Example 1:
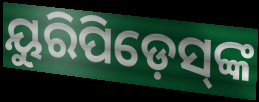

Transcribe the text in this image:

ୟୁରିପିଡ଼େସ୍‌ଙ୍କ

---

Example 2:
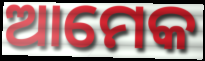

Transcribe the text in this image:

ଆମେକ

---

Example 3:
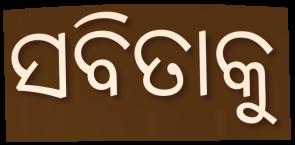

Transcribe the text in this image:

ସବିତାକୁ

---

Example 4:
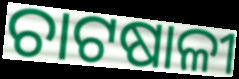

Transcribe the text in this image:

ଚାଟଷାଳୀ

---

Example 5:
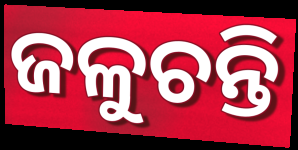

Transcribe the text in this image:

ଜଳୁଚନ୍ତି